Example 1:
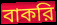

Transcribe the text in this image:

বাকরি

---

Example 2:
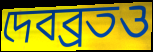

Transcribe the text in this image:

দেবব্রতও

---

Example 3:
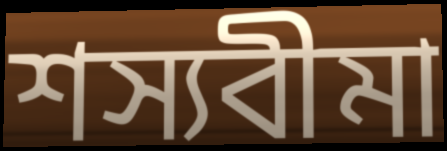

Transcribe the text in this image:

শস্যবীমা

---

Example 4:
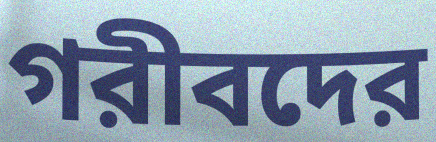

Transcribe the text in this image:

গরীবদের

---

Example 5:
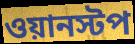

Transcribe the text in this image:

ওয়ানস্টপ